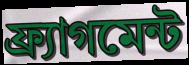
ফ্র্যাগমেন্ট